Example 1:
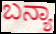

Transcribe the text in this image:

ಬನ್ಯಾ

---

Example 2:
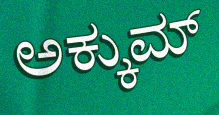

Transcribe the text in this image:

ಅಕ್ಕುಮ್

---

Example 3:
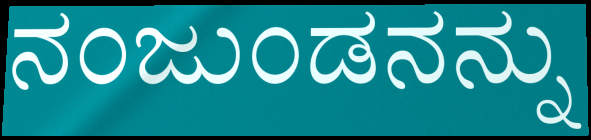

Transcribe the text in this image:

ನಂಜುಂಡನನ್ನು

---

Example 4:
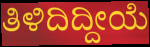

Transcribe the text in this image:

ತಿಳಿದಿದ್ದೀಯೆ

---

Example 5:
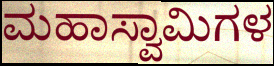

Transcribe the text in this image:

ಮಹಾಸ್ವಾಮಿಗಳ